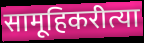
सामूहिकरीत्या